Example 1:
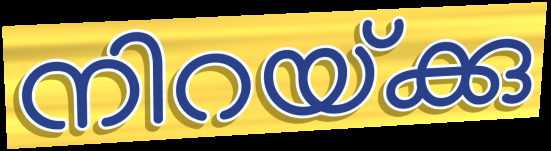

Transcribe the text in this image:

നിറയ്‌ക്കു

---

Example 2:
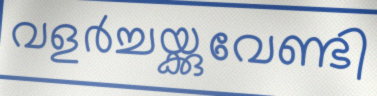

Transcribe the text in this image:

വളർച്ചയ്ക്കുവേണ്ടി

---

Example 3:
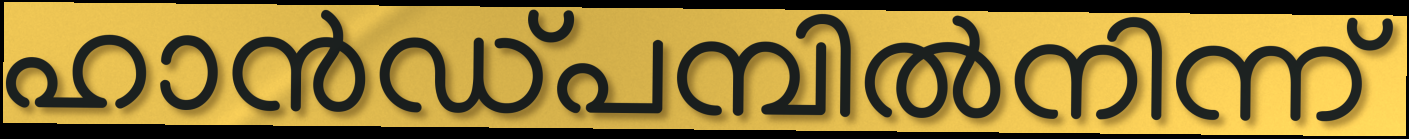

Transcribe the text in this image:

ഹാൻഡ്പമ്പിൽനിന്ന്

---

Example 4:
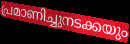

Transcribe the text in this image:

പ്രമാണിച്ചുനടക്കയും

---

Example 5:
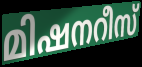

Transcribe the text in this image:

മിഷനറീസ്